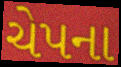
ચેપના